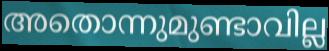
അതൊന്നുമുണ്ടാവില്ല